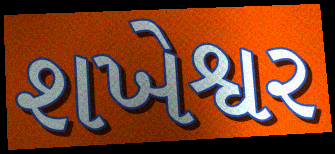
શખેશ્વર